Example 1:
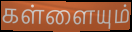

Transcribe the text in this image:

கள்ளையும்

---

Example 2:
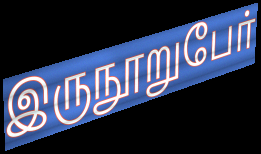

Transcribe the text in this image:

இருநூறுபேர்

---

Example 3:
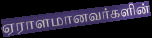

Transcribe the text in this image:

ஏராளமானவர்களின்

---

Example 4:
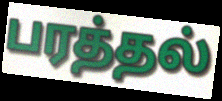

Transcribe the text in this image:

பரத்தல்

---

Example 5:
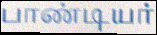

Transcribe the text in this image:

பாண்டியர்